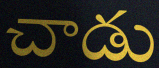
చాడు